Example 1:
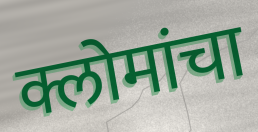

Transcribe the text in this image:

क्लोमांचा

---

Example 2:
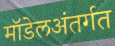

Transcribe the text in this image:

मॉडेलअंतर्गत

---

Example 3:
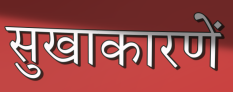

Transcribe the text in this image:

सुखाकारणें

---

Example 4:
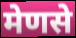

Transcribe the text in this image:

मेणसे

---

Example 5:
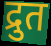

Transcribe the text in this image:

द्रुत